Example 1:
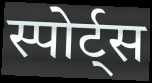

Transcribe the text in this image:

स्पोर्ट्स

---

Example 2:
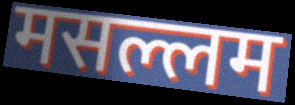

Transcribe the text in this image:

मसल्लम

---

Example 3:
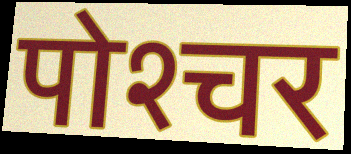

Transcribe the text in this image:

पोश्चर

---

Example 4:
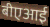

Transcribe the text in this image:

बीएआई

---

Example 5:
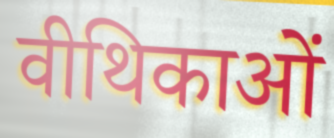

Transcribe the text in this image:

वीथिकाओं